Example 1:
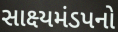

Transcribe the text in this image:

સાક્ષ્યમંડપનો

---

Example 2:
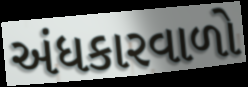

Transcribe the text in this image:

અંધકારવાળો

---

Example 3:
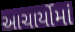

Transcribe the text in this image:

આચાર્યોમાં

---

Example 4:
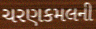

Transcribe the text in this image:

ચરણકમલની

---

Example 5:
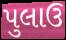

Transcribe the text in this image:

પુલાઉ